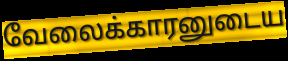
வேலைக்காரனுடைய